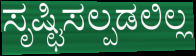
ಸೃಷ್ಟಿಸಲ್ಪಡಲಿಲ್ಲ